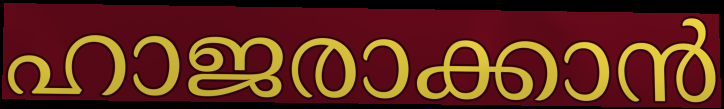
ഹാജരാക്കാൻ